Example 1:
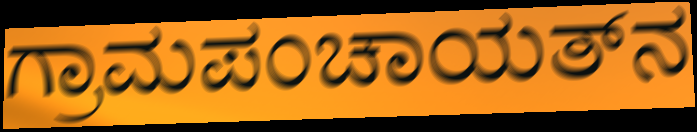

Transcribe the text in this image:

ಗ್ರಾಮಪಂಚಾಯತ್‌ನ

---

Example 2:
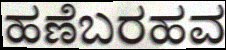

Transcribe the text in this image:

ಹಣೆಬರಹವ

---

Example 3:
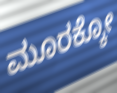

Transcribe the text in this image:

ಮೂರಕ್ಕೋ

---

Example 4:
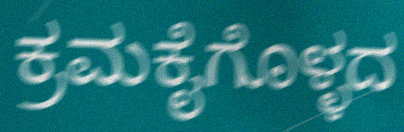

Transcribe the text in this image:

ಕ್ರಮಕೈಗೊಳ್ಳದ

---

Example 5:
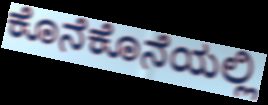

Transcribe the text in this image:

ಕೊನೆಕೊನೆಯಲ್ಲಿ